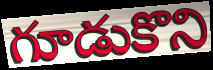
గూడుకొని